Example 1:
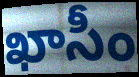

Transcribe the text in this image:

ఖాసీం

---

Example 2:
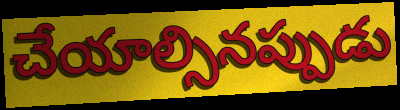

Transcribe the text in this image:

చేయాల్సినప్పుడు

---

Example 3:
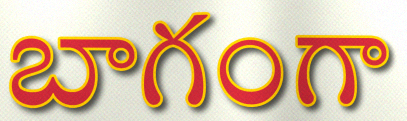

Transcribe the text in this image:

బాగంగా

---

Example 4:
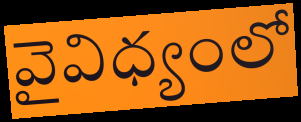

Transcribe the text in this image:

వైవిధ్యంలో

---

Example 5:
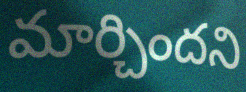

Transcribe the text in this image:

మార్చిందని